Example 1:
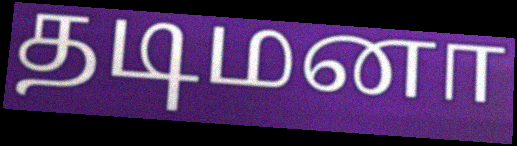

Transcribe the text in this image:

தடிமனா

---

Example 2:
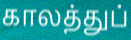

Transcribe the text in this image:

காலத்துப்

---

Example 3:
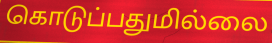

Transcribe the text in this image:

கொடுப்பதுமில்லை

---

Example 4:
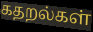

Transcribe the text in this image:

கதறல்கள்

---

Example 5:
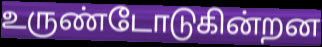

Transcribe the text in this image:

உருண்டோடுகின்றன